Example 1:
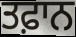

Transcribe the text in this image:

ਤਫ਼ਾਨ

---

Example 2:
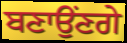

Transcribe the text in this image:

ਬਣਾਉਂਣਗੇ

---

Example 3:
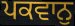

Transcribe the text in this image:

ਪਕਵਾਨੁ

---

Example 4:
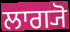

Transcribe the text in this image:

ਲਾਗ੍ਯੋ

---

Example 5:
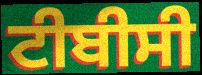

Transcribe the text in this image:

ਟੀਬੀਸੀ